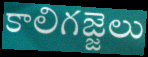
కాలిగజ్జెలు